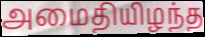
அமைதியிழந்த